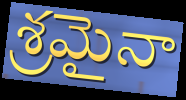
శ్రమైనా